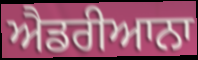
ਐਡਰੀਆਨਾ